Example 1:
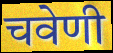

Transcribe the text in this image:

चवेणी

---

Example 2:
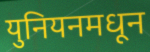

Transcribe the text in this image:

युनियनमधून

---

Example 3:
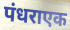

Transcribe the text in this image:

पंधराएक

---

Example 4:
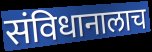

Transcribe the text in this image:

संविधानालाच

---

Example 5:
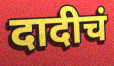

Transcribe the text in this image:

दादीचं